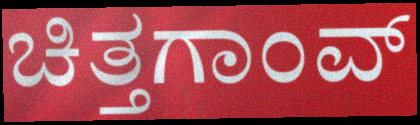
ಚಿತ್ತಗಾಂವ್